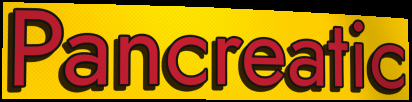
Pancreatic